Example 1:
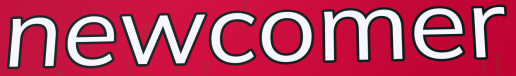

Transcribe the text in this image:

newcomer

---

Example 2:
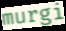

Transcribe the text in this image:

murgi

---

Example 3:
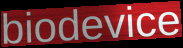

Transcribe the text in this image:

biodevice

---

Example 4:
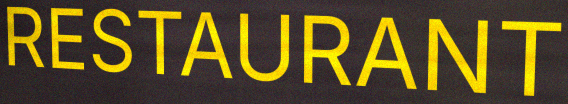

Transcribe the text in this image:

RESTAURANT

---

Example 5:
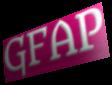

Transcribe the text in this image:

GFAP